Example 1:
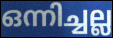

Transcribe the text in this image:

ഒന്നിച്ചല്ല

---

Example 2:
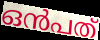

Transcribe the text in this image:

ഒൻപത്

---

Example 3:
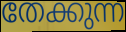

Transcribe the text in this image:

തേക്കുന്ന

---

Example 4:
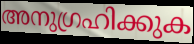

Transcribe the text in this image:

അനുഗ്രഹിക്കുക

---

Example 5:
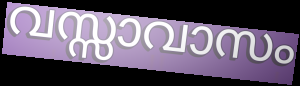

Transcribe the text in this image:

വസ്സാവാസം